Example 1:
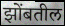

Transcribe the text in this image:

झोंबतील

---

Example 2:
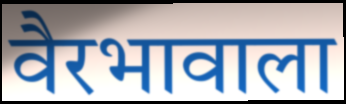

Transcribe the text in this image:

वैरभावाला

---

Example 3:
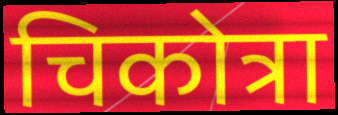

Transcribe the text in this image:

चिकोत्रा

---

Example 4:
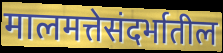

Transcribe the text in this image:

मालमत्तेसंदर्भातील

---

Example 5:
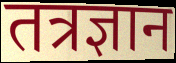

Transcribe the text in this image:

तत्रज्ञान